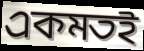
একমতই